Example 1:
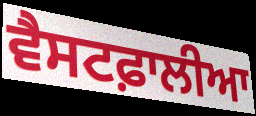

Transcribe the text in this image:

ਵੈਸਟਫ਼ਾਲੀਆ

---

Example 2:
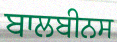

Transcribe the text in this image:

ਬਾਲਬੀਨਸ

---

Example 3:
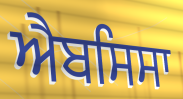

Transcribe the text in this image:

ਐਬਸਿਸਾ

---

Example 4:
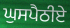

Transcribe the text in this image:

ਘੁਸਪੈਠੀਏ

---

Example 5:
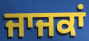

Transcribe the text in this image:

ਜਾਜਕਾਂ